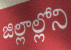
జిల్లాల్లోని